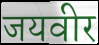
जयवीर